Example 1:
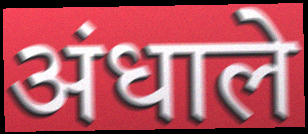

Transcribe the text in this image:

अंधाले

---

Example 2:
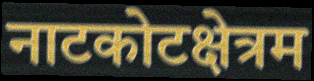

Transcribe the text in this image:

नाटकोटक्षेत्रम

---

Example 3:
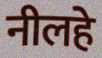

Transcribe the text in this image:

नीलहे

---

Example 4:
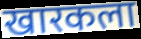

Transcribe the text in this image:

खारकला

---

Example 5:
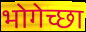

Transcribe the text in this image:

भोगेच्छा